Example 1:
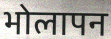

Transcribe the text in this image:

भोलापन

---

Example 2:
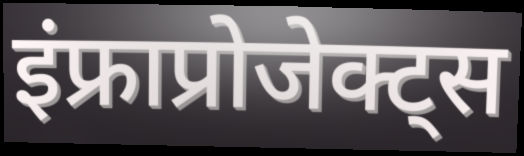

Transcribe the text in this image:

इंफ्राप्रोजेक्ट्स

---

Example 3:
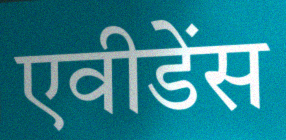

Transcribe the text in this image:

एवीडेंस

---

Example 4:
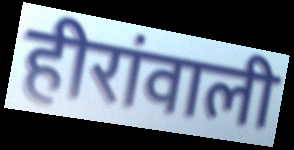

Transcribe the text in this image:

हीरांवाली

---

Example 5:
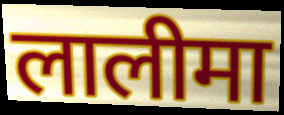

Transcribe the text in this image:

लालीमा